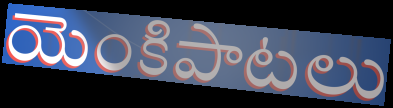
యెంకిపాటలు